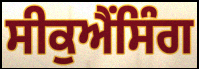
ਸੀਕੁਐਂਸਿੰਗ